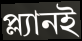
প্ল্যানই